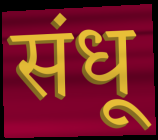
संधू